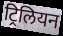
ट्रिलियन